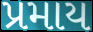
પ્રમાય